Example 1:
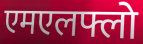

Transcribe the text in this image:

एमएलफ्लो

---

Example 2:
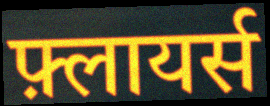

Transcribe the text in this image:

फ़्लायर्स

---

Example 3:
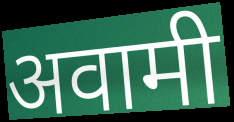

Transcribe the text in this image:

अवामी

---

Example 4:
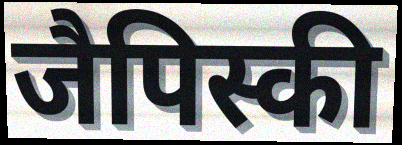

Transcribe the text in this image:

जैपिस्की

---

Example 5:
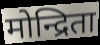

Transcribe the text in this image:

मोन्द्रिता